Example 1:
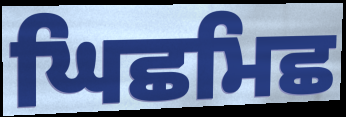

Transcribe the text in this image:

ਘਿਛਮਿਛ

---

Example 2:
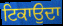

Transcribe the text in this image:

ਟਿਕਾਉਦਾ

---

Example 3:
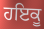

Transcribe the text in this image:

ਹਇਕੂ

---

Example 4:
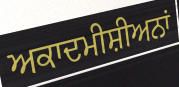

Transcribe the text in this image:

ਅਕਾਦਮੀਸ਼ੀਅਨਾਂ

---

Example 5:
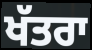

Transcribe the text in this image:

ਖੱਤਰਾ